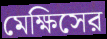
মেক্ষিসের